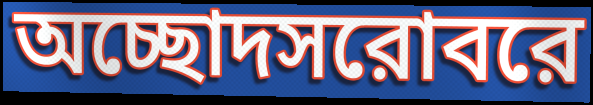
অচ্ছোদসরোবরে